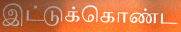
இட்டுக்கொண்ட